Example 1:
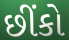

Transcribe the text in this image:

છીંકો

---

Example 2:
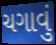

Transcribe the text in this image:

ચગાવું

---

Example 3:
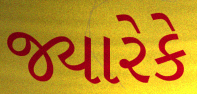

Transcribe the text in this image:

જ્યારેકે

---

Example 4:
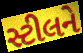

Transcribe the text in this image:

સ્ટીલને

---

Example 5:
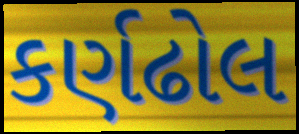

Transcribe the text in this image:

કર્ણઢોલ